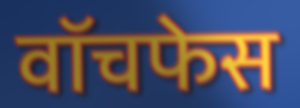
वॉचफेस